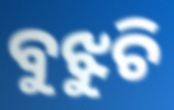
ବୁଝୁଚି